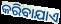
କରିବାଯାଏ